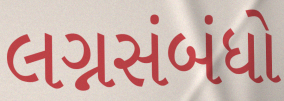
લગ્નસંબંધો